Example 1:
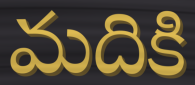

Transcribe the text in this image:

మదికి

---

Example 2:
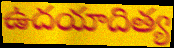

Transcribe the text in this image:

ఉదయాదిత్య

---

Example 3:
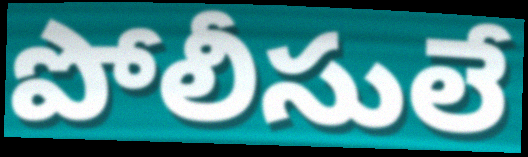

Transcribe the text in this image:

పోలీసులే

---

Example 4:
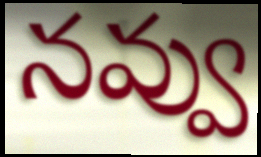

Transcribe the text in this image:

నవ్వు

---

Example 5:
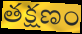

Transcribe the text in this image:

తక్షణం